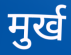
मुर्ख